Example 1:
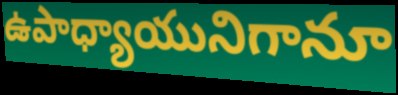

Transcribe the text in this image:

ఉపాధ్యాయునిగానూ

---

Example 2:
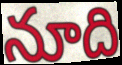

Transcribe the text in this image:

నూది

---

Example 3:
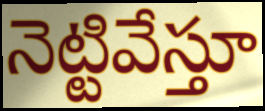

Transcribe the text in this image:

నెట్టివేస్తూ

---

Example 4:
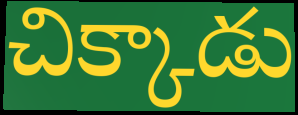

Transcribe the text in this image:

చిక్కాడు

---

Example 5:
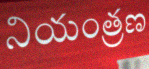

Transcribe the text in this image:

నియంత్రణ